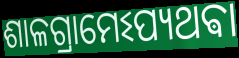
ଶାଳଗ୍ରାମେଽପ୍ଯଥଵା